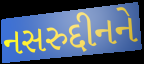
નસરુદ્દીનને